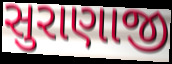
સુરાણાજી